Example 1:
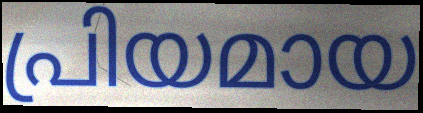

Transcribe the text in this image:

പ്രിയമായ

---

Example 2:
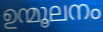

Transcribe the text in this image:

ഉന്മൂലനം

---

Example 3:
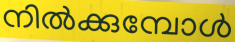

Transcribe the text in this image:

നിൽക്കുമ്പോൾ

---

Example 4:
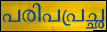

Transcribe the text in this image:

പരിപപ്രച്ഛ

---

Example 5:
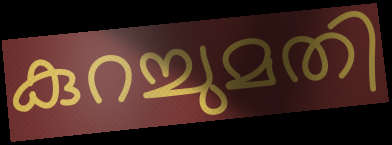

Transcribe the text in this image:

കുറച്ചുമതി